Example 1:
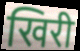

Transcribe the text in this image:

खिरी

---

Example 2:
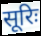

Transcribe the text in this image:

सूरिः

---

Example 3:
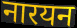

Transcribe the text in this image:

नारयन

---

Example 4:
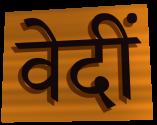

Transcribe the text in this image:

वेदीं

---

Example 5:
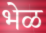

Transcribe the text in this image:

भेळ